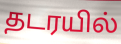
தடரயில்